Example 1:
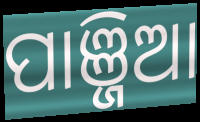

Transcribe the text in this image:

ପାଞ୍ଜିଆ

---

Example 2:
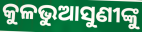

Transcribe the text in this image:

କୁଳଭୁଆସୁଣୀଙ୍କୁ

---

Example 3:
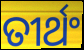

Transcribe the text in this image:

ତୀର୍ଥଂ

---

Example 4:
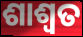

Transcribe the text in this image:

ଶାଶ୍ୱତ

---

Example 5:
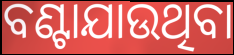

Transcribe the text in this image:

ବଣ୍ଟାଯାଉଥିବା